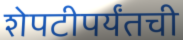
शेपटीपर्यंतची